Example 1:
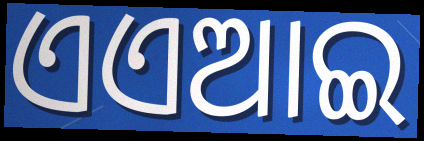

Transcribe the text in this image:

ଏଏଆଇ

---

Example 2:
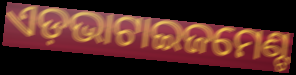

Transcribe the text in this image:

ଏଡ଼ଭାଟାଇଜମେଣ୍ଟ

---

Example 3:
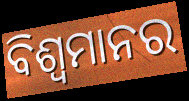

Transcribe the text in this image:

ବିଶ୍ୱମାନର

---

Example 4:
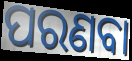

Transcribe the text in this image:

ପରଣବା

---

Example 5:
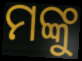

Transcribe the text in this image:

ମଙ୍କୁ